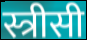
स्त्रीसी